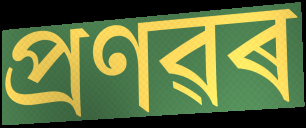
প্ৰণৱৰ